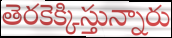
తెరకెక్కిస్తున్నారు